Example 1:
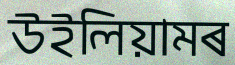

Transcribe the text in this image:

উইলিয়ামৰ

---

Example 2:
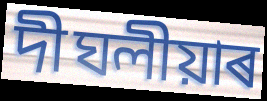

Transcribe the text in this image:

দীঘলীয়াৰ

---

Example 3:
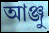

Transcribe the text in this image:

আঞ্জু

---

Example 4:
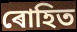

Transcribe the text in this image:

ৰোহিত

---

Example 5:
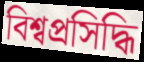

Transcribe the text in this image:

বিশ্বপ্ৰসিদ্ধি